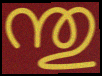
ന്തു